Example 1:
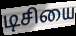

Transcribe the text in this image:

டிசியை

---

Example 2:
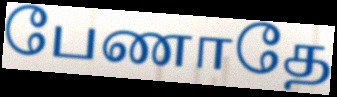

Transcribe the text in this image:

பேணாதே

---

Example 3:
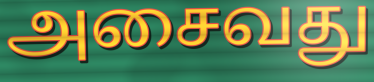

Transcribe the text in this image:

அசைவது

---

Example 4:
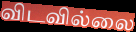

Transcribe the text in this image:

விடவில்லை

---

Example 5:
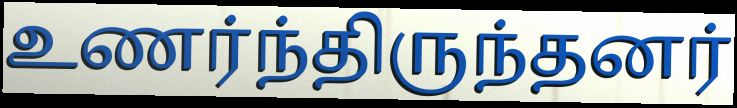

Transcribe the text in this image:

உணர்ந்திருந்தனர்